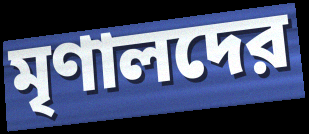
মৃণালদের